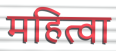
महित्वा